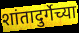
शांतादुर्गेच्या